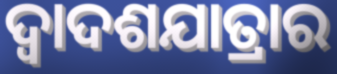
ଦ୍ୱାଦଶଯାତ୍ରାର